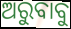
ଅରୁବାବୁ